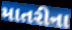
માતરીના